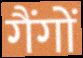
गैंगों